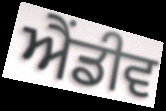
ਐਂਡੀਵ